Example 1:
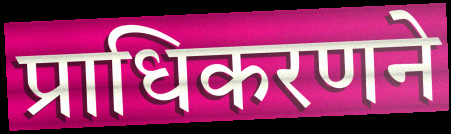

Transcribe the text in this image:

प्राधिकरणने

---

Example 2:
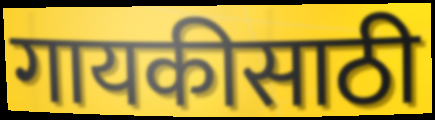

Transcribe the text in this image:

गायकीसाठी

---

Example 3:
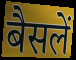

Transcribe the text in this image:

बैसलें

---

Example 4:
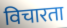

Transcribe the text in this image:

विचारता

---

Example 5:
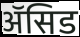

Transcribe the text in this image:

ॲसिड